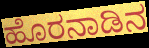
ಹೊರನಾಡಿನ